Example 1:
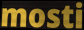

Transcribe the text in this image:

mosti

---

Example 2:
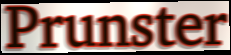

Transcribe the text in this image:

Prunster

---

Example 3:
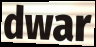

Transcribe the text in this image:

dwar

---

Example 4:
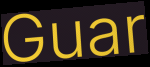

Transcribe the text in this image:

Guar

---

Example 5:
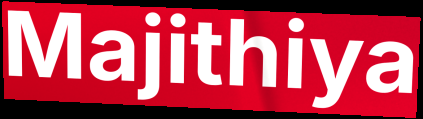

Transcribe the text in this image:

Majithiya